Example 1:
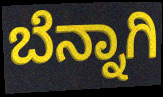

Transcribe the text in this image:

ಬೆನ್ನಾಗಿ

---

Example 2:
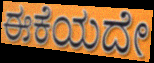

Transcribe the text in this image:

ಈಕೆಯದೇ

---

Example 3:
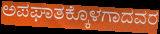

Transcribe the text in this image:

ಅಪಘಾತಕ್ಕೊಳಗಾದವರ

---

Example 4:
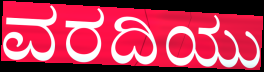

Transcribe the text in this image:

ವರದಿಯು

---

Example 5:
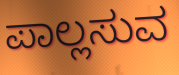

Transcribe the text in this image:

ಪಾಲ್ಲಸುವ